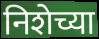
निशेच्या